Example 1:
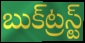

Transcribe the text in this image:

బుక్‌ట్రస్ట్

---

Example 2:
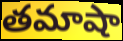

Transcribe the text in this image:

తమాషా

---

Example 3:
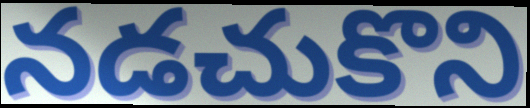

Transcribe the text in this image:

నడచుకొని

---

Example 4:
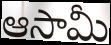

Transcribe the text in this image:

ఆసామీ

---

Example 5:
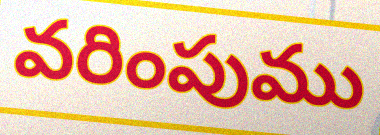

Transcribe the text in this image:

వరింపుము